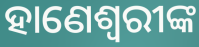
ହାଣେଶ୍ୱରୀଙ୍କ